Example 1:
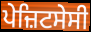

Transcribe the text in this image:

ਪੇਜ਼ਿਟਸੇਸੀ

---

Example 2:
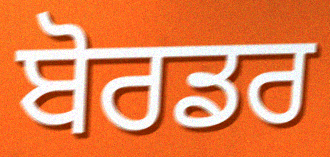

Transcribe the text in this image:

ਬੋਰਡਰ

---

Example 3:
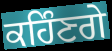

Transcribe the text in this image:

ਕਹਿੰਣਗੇ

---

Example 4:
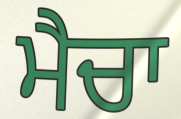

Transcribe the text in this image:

ਮੈਚਾ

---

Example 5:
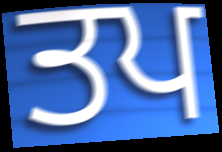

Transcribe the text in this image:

ਤਪ